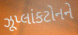
ઝૂપ્લાંકટોનને